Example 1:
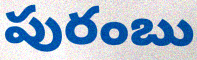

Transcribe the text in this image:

పురంబు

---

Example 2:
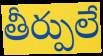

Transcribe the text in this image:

తీర్పులే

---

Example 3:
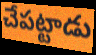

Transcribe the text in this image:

చేపట్టాడు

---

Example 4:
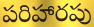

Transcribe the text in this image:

పరిహారపు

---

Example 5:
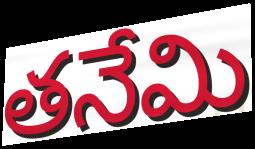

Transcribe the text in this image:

తనేమి